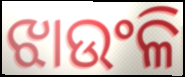
ଝାଉଂଳି